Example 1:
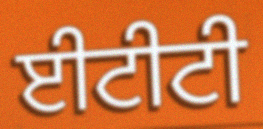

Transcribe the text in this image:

ਈਟੀਟੀ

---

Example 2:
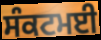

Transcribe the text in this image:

ਸੰਕਟਮਈ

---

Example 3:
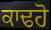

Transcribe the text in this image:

ਕਾਢਹੋ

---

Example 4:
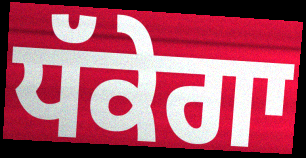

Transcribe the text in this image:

ਧੱਕੇਗਾ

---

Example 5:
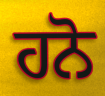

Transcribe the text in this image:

ਹਨੋ